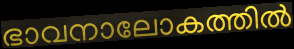
ഭാവനാലോകത്തിൽ